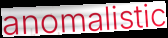
anomalistic